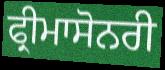
ਫ੍ਰੀਮਾਸੋਨਰੀ